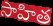
సాహిత